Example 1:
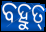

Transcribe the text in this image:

ବହୁତ୍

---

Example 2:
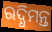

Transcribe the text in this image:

ଋଦ୍ଧିମନ୍ତ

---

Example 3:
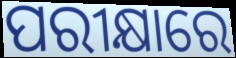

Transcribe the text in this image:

ପରୀକ୍ଷାରେ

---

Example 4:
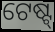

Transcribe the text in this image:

ଟେଷ୍ଟ୍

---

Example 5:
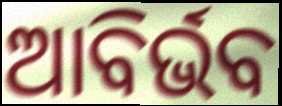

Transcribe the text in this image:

ଆବିର୍ଭବ